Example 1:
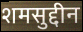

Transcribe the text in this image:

शमसुद्दीन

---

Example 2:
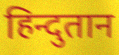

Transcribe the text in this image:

हिन्दुतान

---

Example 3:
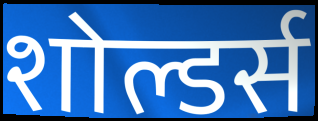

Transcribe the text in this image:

शोल्डर्स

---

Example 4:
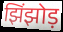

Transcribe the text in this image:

झिंझोड़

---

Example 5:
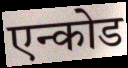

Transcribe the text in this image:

एन्कोड